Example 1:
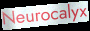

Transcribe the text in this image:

Neurocalyx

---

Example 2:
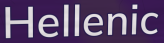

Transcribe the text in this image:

Hellenic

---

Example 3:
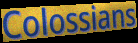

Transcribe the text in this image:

Colossians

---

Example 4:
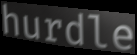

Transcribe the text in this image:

hurdle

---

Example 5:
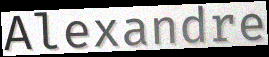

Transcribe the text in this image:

Alexandre